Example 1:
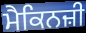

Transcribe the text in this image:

ਮੈਕਿਨਜ਼ੀ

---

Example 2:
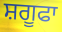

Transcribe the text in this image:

ਸ਼ਗੂਫਾ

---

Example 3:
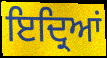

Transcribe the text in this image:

ਇਦ੍ਰਿਆਂ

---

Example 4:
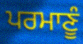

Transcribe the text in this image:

ਪਰਮਾਣੂੰ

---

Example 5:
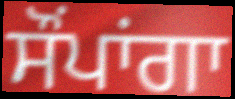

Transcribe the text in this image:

ਸੌਂਪਾਂਗਾ